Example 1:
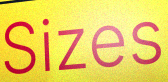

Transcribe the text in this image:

Sizes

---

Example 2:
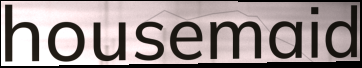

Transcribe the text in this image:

housemaid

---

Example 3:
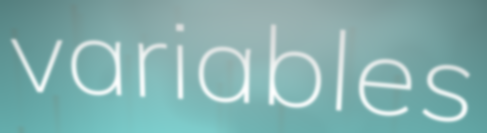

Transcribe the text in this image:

variables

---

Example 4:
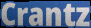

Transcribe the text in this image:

Crantz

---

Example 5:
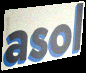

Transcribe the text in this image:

asol